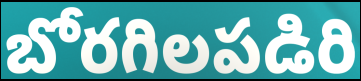
బోరగిలపడిరి